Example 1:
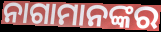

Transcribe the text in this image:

ନାଗାମାନଙ୍କର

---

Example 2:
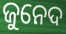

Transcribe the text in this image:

ଜୁନେଦ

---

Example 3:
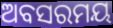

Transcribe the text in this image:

ଅବସରମୟ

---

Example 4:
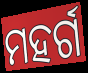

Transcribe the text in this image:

ମହର୍ଗ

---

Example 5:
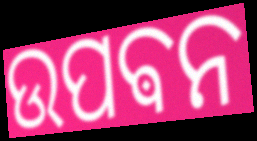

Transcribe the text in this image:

ଉପଵନ